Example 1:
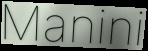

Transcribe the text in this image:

Manini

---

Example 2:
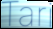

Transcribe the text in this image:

Tari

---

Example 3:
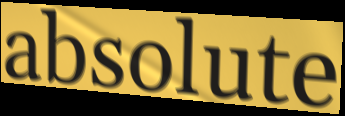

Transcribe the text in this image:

absolute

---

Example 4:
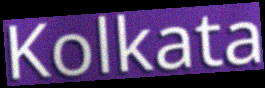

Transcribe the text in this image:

Kolkata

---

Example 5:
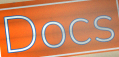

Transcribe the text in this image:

Docs